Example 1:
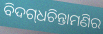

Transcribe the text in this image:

ବିଦଗ୍‌ଧଚିନ୍ତାମଣିର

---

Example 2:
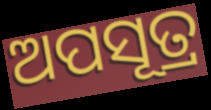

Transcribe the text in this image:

ଅପସୂତ୍ର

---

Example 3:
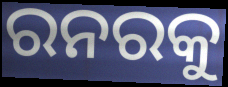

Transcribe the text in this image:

ରନରକୁ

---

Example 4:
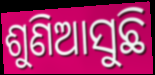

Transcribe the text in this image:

ଶୁଣିଆସୁଛି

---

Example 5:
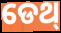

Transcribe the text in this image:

ଡେଥ୍